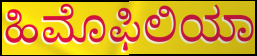
ಹಿಮೊಫಿಲಿಯಾ